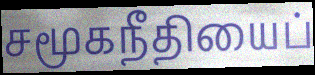
சமூகநீதியைப்